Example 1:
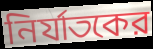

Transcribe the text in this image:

নির্যাতকের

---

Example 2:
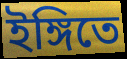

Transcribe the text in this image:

ইঙ্গিতে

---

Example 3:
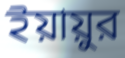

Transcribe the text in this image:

ইয়ায়ুর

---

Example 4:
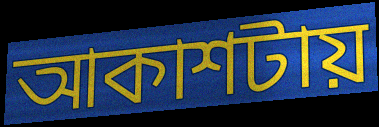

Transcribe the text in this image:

আকাশটায়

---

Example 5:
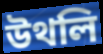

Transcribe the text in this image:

উথলি